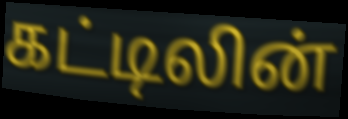
கட்டிலின்